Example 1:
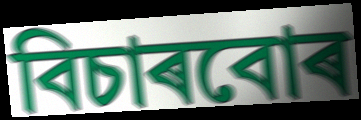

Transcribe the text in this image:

বিচাৰবোৰ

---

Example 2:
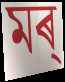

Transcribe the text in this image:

মৰ্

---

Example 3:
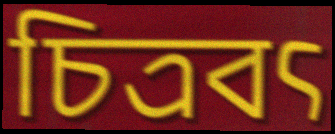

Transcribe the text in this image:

চিত্ৰবৎ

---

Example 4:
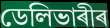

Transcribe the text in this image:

ডেলিভাৰীৰ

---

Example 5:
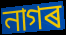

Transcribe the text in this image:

নাগৰ